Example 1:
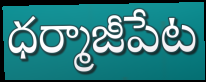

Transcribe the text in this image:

ధర్మాజీపేట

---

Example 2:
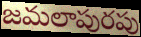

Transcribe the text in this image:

జమలాపురపు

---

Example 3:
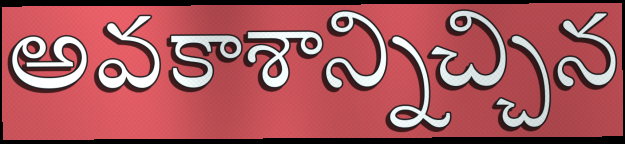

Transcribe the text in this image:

అవకాశాన్నిచ్చిన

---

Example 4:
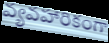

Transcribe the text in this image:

వ్యవహారికంగా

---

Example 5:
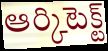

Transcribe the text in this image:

ఆర్కిటెక్ట్